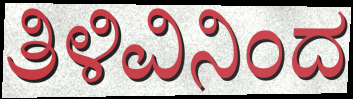
ತಿಳಿವಿನಿಂದ